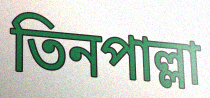
তিনপাল্লা